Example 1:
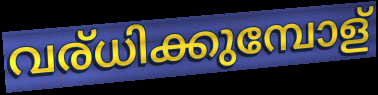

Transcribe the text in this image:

വര്ധിക്കുമ്പോള്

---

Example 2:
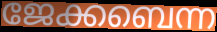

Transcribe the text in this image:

ജേക്കബെന്ന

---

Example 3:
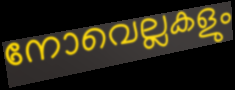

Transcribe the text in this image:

നോവെല്ലകളും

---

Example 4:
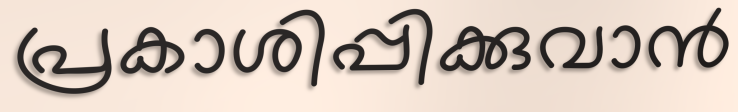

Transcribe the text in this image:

പ്രകാശിപ്പിക്കുവാൻ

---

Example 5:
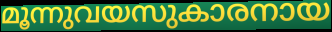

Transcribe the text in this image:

മൂന്നുവയസുകാരനായ